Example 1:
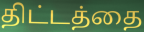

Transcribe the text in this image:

திட்டத்தை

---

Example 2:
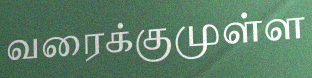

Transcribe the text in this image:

வரைக்குமுள்ள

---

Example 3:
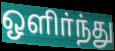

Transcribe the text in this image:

ஒளிர்ந்து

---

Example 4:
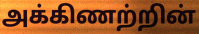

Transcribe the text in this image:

அக்கிணற்றின்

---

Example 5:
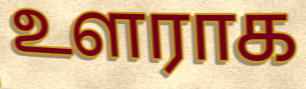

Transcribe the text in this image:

உளராக